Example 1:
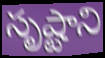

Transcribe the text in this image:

సృష్టాని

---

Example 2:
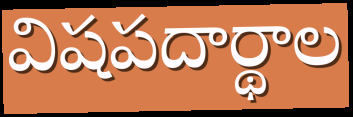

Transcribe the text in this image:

విషపదార్థాల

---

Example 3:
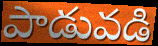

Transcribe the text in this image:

పాడువడి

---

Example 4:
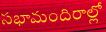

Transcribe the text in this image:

సభామందిరాల్లో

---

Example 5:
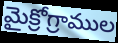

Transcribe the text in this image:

మైక్రోగ్రాముల